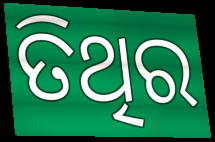
ତିଥିର